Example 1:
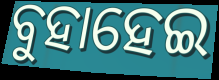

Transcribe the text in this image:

ବୁହାହେଇ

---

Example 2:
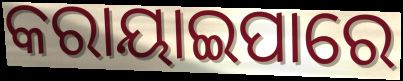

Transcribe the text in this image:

କରାୟାଇପାରେ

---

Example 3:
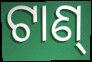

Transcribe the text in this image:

ଟାଣ୍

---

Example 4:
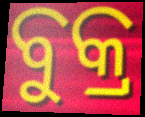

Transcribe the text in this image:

ବୁକ୍ର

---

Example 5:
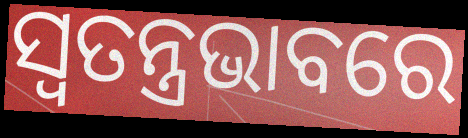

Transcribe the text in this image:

ସ୍ଵତନ୍ତ୍ରଭାବରେ